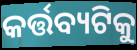
କର୍ତ୍ତବ୍ୟଟିକୁ